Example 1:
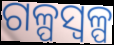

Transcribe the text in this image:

ଗଳ୍ପସ୍ୱଳ୍ପ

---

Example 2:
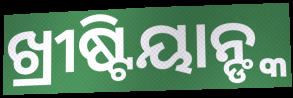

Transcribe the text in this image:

ଖ୍ରୀଷ୍ଟିୟାନ୍ଙ୍କ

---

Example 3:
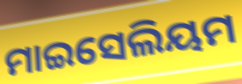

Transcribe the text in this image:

ମାଇସେଲିୟମ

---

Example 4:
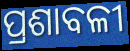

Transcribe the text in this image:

ପ୍ରଶାବଳୀ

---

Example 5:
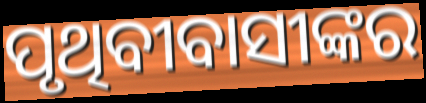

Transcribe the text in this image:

ପୃଥିବୀବାସୀଙ୍କର